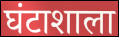
घंटाशाला